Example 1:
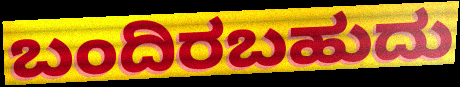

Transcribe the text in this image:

ಬಂದಿರಬಹುದು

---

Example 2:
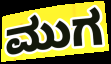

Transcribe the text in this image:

ಮುಗ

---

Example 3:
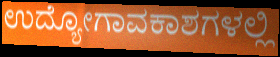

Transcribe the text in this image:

ಉದ್ಯೋಗಾವಕಾಶಗಳಲ್ಲಿ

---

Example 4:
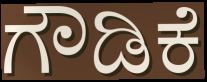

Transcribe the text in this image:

ಗೌಡಿಕೆ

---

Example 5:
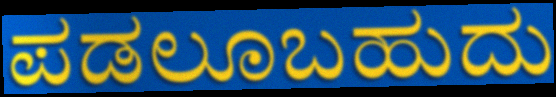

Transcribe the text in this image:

ಪಡಲೂಬಹುದು